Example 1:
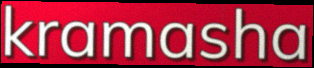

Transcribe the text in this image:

kramasha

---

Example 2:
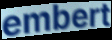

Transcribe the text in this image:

embert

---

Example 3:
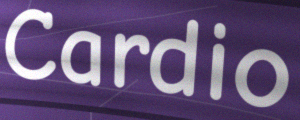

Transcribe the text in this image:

Cardio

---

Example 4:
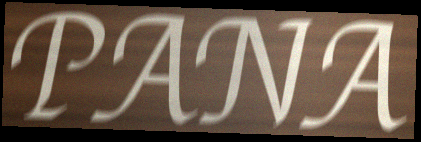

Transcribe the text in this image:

PANA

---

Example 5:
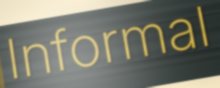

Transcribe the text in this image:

Informal